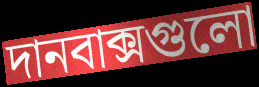
দানবাক্সগুলো